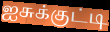
ஐசுக்குட்டி